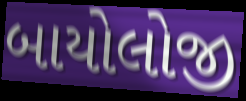
બાયોલોજી